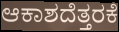
ಆಕಾಶದೆತ್ತರಕೆ